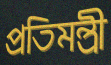
প্রতিমন্ত্রী